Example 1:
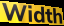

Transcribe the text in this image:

Width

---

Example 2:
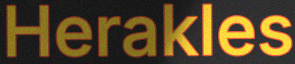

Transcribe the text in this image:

Herakles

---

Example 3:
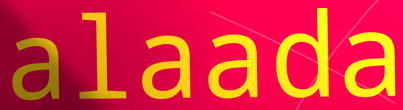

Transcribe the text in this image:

alaada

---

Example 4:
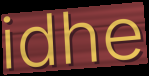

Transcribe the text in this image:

idhe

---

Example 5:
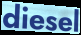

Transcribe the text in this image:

diesel